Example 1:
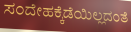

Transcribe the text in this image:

ಸಂದೇಹಕ್ಕೆಡೆಯಿಲ್ಲದಂತೆ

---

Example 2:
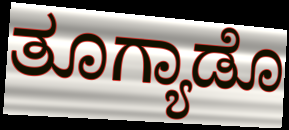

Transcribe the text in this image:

ತೂಗ್ಯಾಡೊ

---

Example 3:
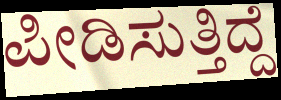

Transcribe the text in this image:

ಪೀಡಿಸುತ್ತಿದ್ದೆ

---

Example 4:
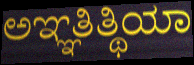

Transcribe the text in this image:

ಅಞ್ಞತಿತ್ಥಿಯಾ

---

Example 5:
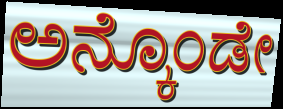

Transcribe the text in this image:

ಅನ್ಕೊಂಡೇ